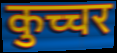
कुच्चर